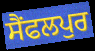
ਸੈਂਫਲਪੁਰ